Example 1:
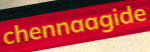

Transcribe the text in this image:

chennaagide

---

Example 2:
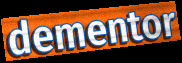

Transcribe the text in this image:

dementor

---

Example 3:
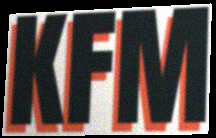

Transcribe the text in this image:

KFM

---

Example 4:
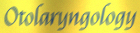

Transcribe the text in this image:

Otolaryngology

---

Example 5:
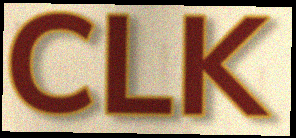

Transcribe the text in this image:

CLK